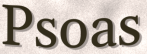
Psoas